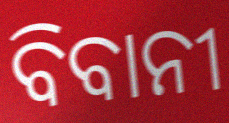
ବିବାନୀ